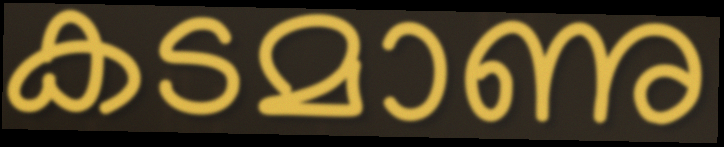
കടമാണു